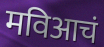
मविआचं